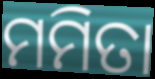
ମମିତା